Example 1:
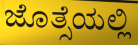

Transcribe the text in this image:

ಜೊತ್ಸೆಯಲ್ಲಿ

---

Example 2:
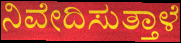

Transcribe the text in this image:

ನಿವೇದಿಸುತ್ತಾಳೆ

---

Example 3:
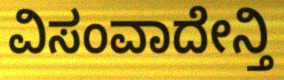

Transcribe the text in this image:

ವಿಸಂವಾದೇನ್ತಿ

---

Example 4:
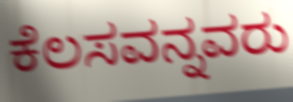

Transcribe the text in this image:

ಕೆಲಸವನ್ನವರು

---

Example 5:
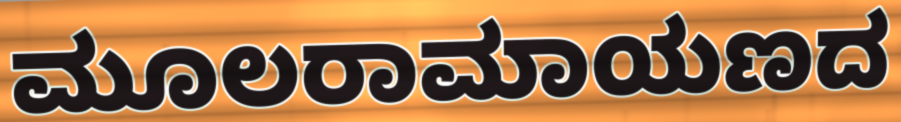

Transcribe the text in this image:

ಮೂಲರಾಮಾಯಣದ